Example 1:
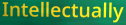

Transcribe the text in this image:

Intellectually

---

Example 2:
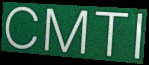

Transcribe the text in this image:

CMTI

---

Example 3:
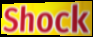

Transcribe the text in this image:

Shock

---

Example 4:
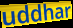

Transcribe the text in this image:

uddhar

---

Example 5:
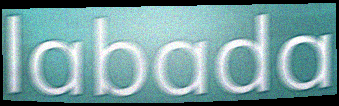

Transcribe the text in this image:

labada